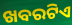
ଖବରଟିଏ